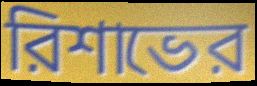
রিশাভের